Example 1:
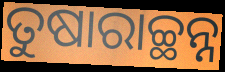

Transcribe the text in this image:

ତୁଷାରାଚ୍ଛନ୍ନ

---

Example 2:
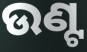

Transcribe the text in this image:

ଉଣ୍ଟ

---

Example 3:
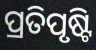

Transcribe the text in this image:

ପ୍ରତିପୃଷ୍ଟି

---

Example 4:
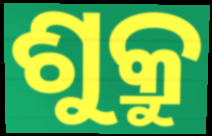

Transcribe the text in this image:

ଶୁକ୍ରୁ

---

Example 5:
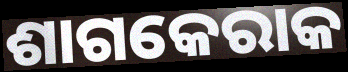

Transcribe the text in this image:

ଶାଗକେରାକ